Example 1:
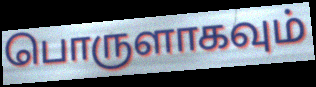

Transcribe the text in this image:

பொருளாகவும்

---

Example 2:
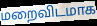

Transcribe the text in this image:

மறைவிடமாக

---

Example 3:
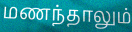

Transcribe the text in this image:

மணந்தாலும்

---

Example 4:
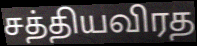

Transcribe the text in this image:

சத்தியவிரத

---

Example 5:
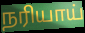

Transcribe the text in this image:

நரியாய்